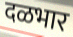
दळभार